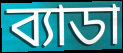
ব্যাডা